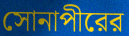
সোনাপীরের